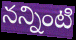
నన్నింటి